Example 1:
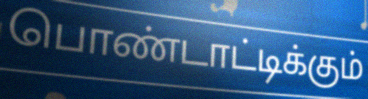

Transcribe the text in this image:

பொண்டாட்டிக்கும்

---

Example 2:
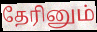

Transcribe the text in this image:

தேரினும்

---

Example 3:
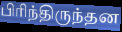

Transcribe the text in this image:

பிரிந்திருந்தன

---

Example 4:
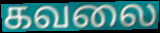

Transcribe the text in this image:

கவலை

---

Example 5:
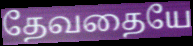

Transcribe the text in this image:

தேவதையே